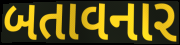
બતાવનાર